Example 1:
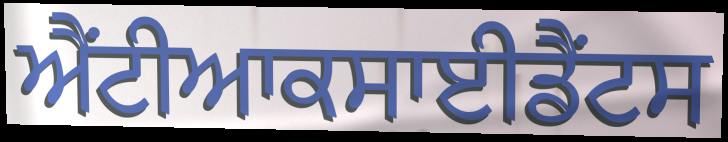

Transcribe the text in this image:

ਐਂਟੀਆਕਸਾਈਡੈਂਟਸ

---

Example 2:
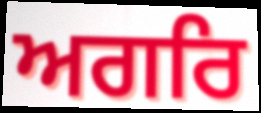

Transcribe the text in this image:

ਅਗਰਿ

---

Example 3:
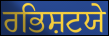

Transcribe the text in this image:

ਰਭਿਸ਼ਟਯੇ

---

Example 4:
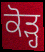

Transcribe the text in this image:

ਕੋੜ੍ਹ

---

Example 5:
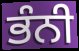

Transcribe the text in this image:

ਭੰਨੀ